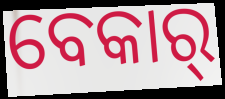
ବେକାର୍